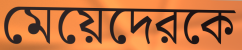
মেয়েদেরকে